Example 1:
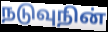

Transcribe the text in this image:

நடுவுநின்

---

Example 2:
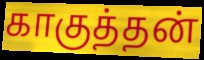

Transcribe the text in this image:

காகுத்தன்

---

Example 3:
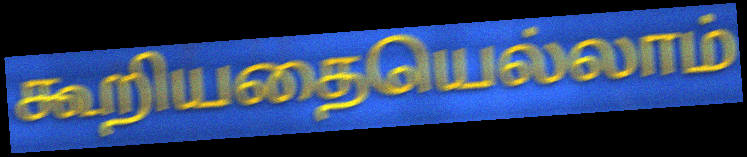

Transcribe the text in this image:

கூறியதையெல்லாம்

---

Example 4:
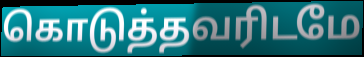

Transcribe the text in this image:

கொடுத்தவரிடமே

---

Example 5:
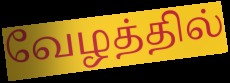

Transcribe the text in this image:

வேழத்தில்